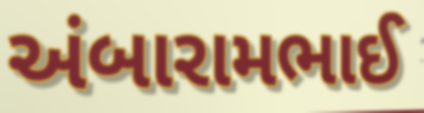
અંબારામભાઈ